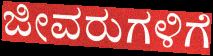
ಜೀವರುಗಳಿಗೆ